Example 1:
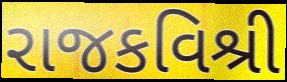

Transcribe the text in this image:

રાજકવિશ્રી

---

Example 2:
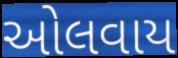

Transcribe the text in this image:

ઓલવાય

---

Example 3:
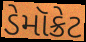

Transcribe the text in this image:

ડેમૉક્રેટ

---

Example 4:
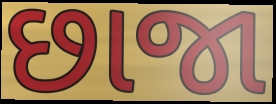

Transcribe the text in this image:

છાજા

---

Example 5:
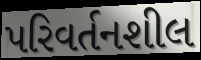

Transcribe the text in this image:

પરિવર્તનશીલ